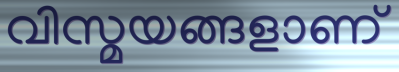
വിസ്മയങ്ങളാണ്